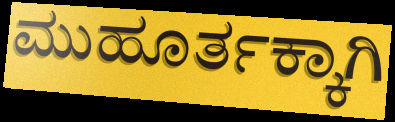
ಮುಹೂರ್ತಕ್ಕಾಗಿ